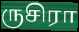
ருசிரா